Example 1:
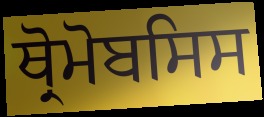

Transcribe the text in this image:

ਥ੍ਰੋਮੋਬਸਿਸ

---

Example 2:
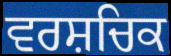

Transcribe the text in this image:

ਵਰਸ਼ਚਿਕ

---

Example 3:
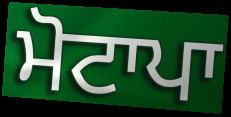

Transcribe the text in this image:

ਮੋਟਾਪਾ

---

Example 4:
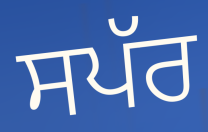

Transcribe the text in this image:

ਸਪੱਰ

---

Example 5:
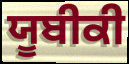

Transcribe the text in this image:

ਯੂਬੀਕੀ